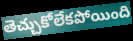
తెచ్చుకోలేకపోయింది